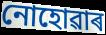
নোহোৱাৰ